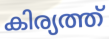
കിര്യത്ത്